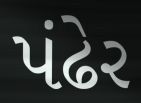
પંઢેર